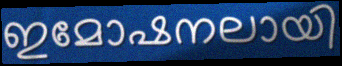
ഇമോഷനലായി